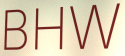
BHW